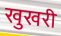
खुखरी